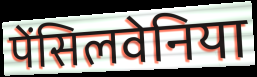
पेंसिलवेनिया